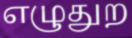
எழுதுற